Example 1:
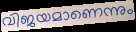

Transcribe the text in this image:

വിജയമാണെന്നും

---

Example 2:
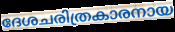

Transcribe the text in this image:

ദേശചരിത്രകാരനായ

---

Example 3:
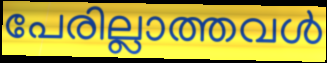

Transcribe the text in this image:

പേരില്ലാത്തവൾ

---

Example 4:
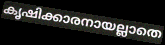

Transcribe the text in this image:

കൃഷിക്കാരനായല്ലാതെ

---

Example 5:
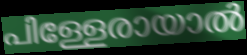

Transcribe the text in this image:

പിള്ളേരായാൽ